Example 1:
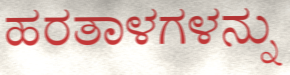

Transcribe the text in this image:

ಹರತಾಳಗಳನ್ನು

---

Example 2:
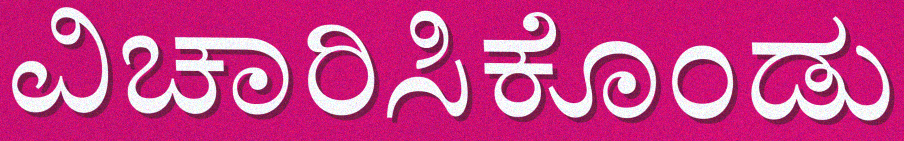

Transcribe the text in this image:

ವಿಚಾರಿಸಿಕೊಂಡು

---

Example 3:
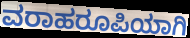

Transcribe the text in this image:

ವರಾಹರೂಪಿಯಾಗಿ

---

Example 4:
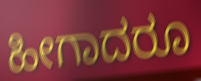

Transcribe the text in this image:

ಹೀಗಾದರೂ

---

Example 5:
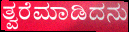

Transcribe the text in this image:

ತ್ವರೆಮಾಡಿದನು